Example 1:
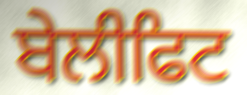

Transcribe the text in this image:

ਬੇਲੀਫਿਟ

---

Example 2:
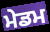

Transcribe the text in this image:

ਮੇਡਮ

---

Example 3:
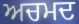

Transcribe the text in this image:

ਅਚਮਦ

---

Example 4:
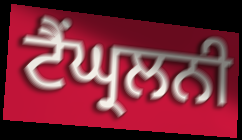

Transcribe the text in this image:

ਟੈਂਘ੍ਰਲਨੀ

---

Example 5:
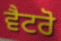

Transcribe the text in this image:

ਵੈਟਰੋ